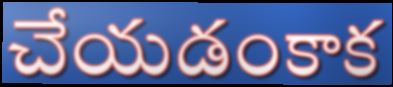
చేయడంకాక